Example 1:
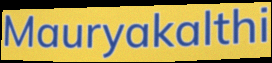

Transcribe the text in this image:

Mauryakalthi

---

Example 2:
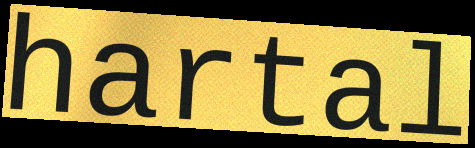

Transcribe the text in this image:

hartal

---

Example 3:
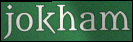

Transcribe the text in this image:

jokham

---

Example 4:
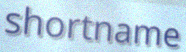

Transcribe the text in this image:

shortname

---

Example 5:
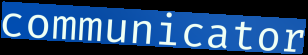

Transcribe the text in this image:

communicator